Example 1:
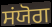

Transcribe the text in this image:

ਸਂਯੋਗ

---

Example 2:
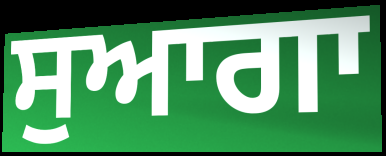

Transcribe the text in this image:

ਸੁਆਗਾ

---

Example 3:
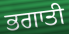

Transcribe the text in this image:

ਭਗਾਤੀ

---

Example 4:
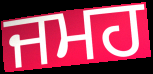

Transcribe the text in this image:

ਜਮਹ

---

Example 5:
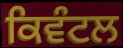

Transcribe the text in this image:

ਕਿਵੰਟਲ